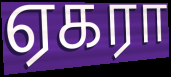
ஏகரா